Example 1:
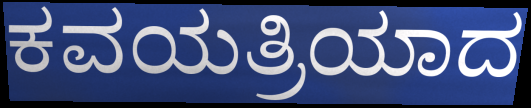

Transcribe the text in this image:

ಕವಯತ್ರಿಯಾದ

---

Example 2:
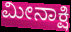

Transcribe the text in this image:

ಮೀನಾಕ್ಷಿ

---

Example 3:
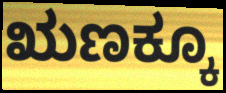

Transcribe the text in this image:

ಋಣಕ್ಕೂ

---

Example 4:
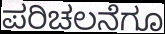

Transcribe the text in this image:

ಪರಿಚಲನೆಗೂ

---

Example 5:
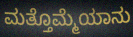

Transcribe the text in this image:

ಮತ್ತೊಮ್ಮೆಯಾನು